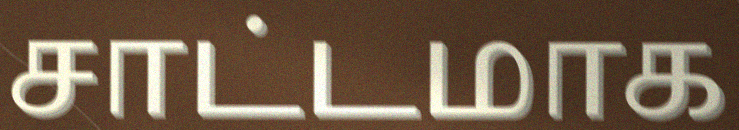
சாட்டமாக